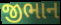
જીભાન